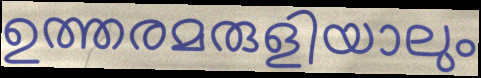
ഉത്തരമരുളിയാലും